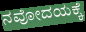
ನವೋದಯಕ್ಕೆ